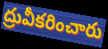
ద్రువీకరించారు